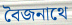
বৈজনাথে